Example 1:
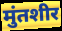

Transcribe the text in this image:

मुंतशीर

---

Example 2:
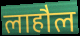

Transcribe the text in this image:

लाहौल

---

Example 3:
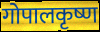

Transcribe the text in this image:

गोपालकृष्‍ण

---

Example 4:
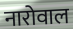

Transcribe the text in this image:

नारोवाल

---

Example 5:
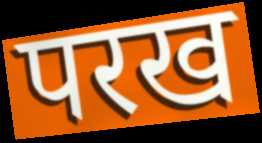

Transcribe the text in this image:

परख